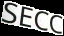
SECC